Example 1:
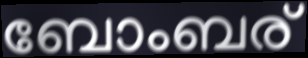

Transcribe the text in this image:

ബോംബര്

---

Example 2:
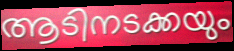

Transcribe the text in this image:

ആടിനടക്കയും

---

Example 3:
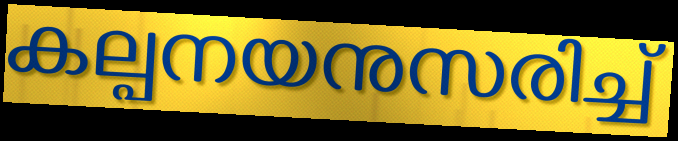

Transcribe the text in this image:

കല്പനയനുസരിച്ച്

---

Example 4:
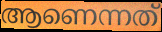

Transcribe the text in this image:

ആണെന്നത്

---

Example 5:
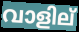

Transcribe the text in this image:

വാളില്